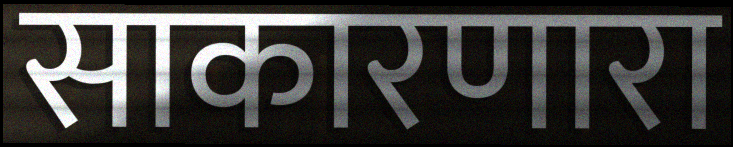
साकारणारा